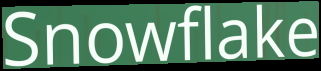
Snowflake